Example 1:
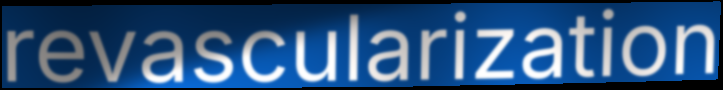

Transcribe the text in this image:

revascularization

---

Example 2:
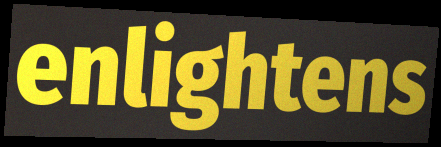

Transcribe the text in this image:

enlightens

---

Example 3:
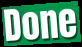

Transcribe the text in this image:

Done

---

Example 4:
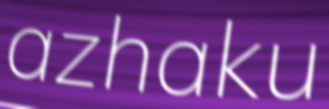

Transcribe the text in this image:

azhaku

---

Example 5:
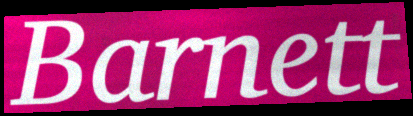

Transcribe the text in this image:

Barnett